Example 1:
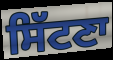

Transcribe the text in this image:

ਸਿੱਟਣਾ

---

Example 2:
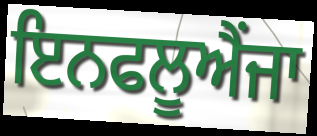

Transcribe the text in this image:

ਇਨਫਲੂਐਂਜਾ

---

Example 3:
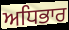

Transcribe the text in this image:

ਅਧਿਭਾਰ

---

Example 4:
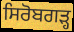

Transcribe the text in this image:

ਸਿਰੋਬਗੜ੍ਹ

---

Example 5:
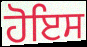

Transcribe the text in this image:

ਹੋਇਸ